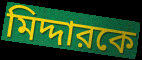
মিদ্দারকে